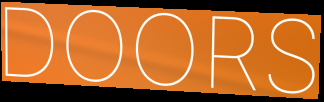
DOORS